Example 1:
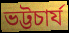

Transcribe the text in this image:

ভট্টচাৰ্য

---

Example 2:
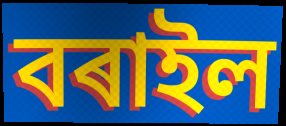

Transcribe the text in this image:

বৰাইল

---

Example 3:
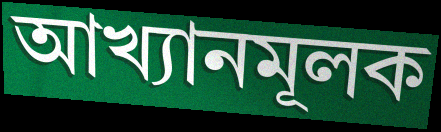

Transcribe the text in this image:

আখ্যানমূলক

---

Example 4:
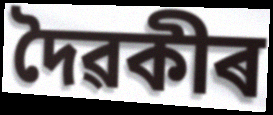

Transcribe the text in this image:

দৈৱকীৰ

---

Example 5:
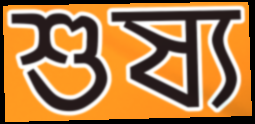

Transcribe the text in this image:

শুষ্য